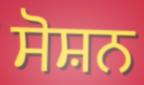
ਸੋਸ਼ਨ